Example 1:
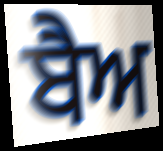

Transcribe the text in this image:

ਬੈਅ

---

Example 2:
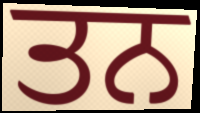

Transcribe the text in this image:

ਤਨ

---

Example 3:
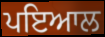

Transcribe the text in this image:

ਪਇਆਲ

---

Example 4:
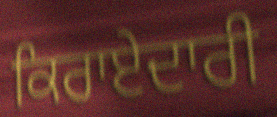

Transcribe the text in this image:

ਕਿਰਾਏਦਾਰੀ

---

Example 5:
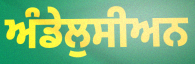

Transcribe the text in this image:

ਅੰਡੇਲੁਸੀਅਨ